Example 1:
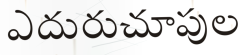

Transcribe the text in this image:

ఎదురుచూపుల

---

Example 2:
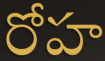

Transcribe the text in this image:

రోహ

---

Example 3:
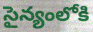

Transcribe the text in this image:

సైన్యంలోకి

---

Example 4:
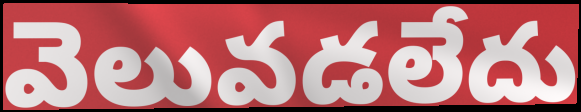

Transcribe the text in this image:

వెలువడలేదు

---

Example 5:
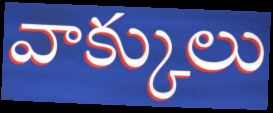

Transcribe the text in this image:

వాక్కులు